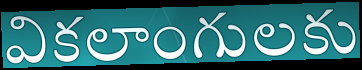
వికలాంగులకు